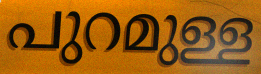
പുറമുള്ള